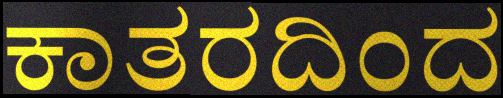
ಕಾತರದಿಂದ